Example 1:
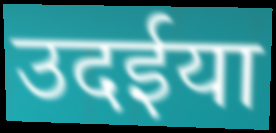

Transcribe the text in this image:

उदईया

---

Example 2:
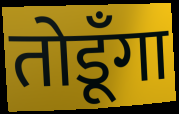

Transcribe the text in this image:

तोडूँगा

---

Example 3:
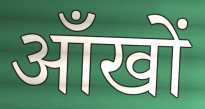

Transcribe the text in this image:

आँखों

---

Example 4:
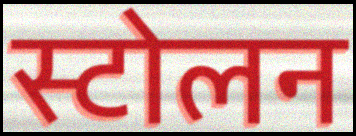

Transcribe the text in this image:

स्टोलन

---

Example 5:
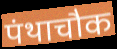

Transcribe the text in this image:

पंथाचौक